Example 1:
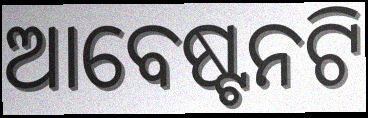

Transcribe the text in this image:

ଆବେଷ୍ଟନଟି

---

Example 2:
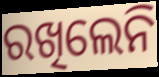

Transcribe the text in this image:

ରଖିଲେନି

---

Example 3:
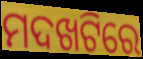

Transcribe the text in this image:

ମଦଖଟିରେ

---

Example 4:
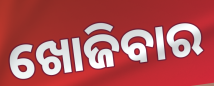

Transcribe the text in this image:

ଖୋଜିବାର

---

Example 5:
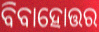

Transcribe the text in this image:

ବିବାହୋତ୍ତର